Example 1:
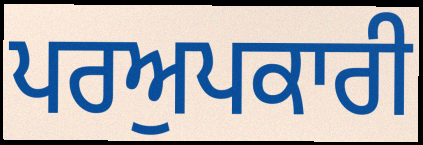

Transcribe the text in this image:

ਪਰਅੁਪਕਾਰੀ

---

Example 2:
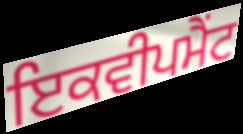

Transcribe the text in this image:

ਇਕਵੀਪਮੈਂਟ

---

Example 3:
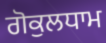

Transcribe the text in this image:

ਗੋਕੁਲਧਾਮ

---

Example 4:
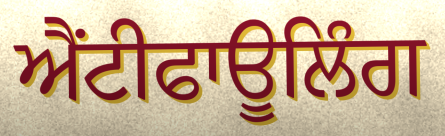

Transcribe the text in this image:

ਐਂਟੀਫਾਊਲਿੰਗ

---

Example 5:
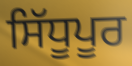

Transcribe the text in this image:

ਸਿੱਧੂਪੂਰ